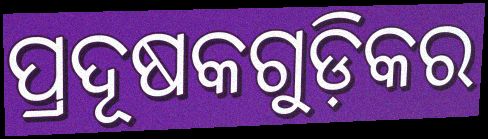
ପ୍ରଦୂଷକଗୁଡ଼ିକର